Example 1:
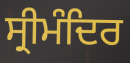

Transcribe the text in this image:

ਸ੍ਰੀਮੰਦਿਰ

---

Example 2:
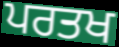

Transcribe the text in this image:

ਪਰਤਖ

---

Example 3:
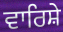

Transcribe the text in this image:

ਵਾਰਿਸ਼ੇ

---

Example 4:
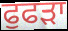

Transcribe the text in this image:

ਫੁਫੜਾ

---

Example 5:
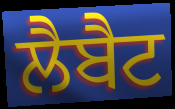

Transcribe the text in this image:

ਲੈਬੈਟ